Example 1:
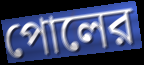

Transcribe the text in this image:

পোলের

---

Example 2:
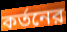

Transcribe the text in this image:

কর্তনের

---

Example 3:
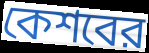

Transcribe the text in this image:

কেশবের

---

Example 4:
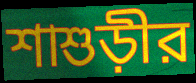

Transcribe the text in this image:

শাশুড়ীর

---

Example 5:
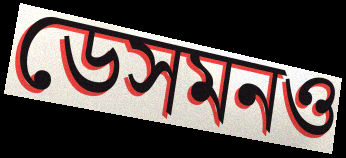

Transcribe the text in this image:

ডেসমনও